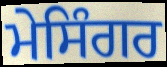
ਮੇਸਿੰਗਰ